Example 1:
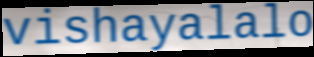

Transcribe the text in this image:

vishayalalo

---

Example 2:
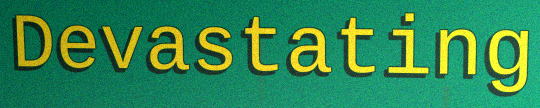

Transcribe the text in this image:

Devastating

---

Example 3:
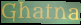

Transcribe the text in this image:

Ghatna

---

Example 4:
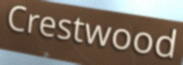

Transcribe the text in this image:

Crestwood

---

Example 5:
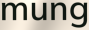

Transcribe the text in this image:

mung